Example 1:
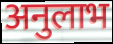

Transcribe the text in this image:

अनुलाभ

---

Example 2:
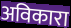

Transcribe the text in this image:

अविकारा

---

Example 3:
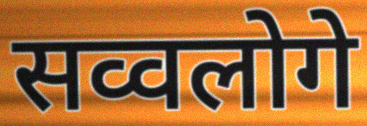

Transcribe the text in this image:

सव्वलोगे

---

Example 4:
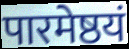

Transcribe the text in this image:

पारमेष्ठयं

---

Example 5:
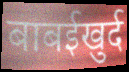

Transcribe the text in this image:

बाबईखुर्द